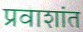
प्रवाशांत